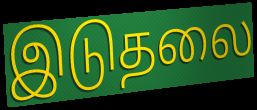
இடுதலை